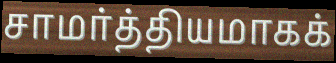
சாமர்த்தியமாகக்